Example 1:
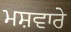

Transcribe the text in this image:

ਮਸ਼ਵਾਰੇ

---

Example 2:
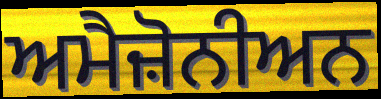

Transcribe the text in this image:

ਅਮੈਜ਼ੋਨੀਅਨ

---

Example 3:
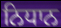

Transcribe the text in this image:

ਨਿਧਾਨ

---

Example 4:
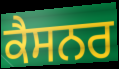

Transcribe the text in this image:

ਕੈਸਨਰ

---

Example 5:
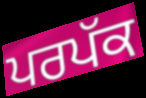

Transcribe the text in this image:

ਪਰਪੱਕ